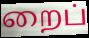
றைப்